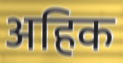
अहिक